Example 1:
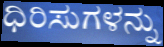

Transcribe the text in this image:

ಧಿರಿಸುಗಳನ್ನು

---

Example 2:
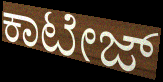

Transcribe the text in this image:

ಕಾಟೇಜ್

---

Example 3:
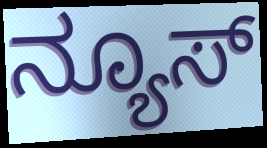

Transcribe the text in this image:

ನ್ಯೂಸ್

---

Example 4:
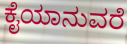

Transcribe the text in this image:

ಕೈಯಾನುವರೆ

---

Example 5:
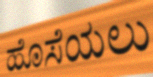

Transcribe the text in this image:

ಹೊಸೆಯಲು